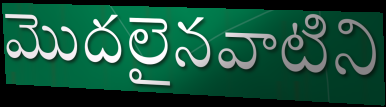
మొదలైనవాటిని